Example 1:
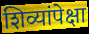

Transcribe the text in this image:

शिव्यांपेक्षा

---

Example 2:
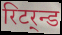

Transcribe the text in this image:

रिटर्न्ड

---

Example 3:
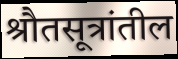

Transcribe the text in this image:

श्रौतसूत्रांतील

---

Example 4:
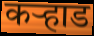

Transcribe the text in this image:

कऱ्हाड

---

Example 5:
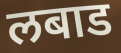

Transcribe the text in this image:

लबाड